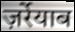
ज़र्रेयाब